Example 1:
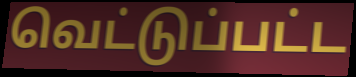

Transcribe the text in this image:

வெட்டுப்பட்ட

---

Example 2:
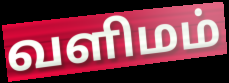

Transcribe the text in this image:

வளிமம்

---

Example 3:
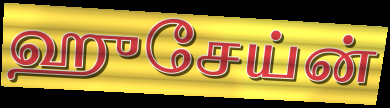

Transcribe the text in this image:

ஹுசேய்ன்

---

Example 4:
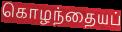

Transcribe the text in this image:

கொழந்தையப்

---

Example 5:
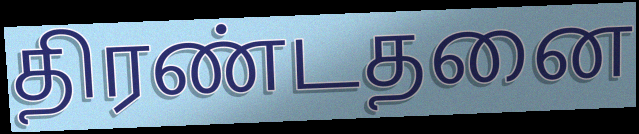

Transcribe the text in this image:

திரண்டதனை